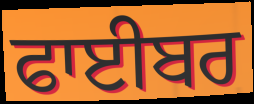
ਫਾਈਬਰ